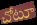
చోటూ